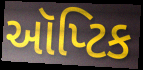
ઑપ્ટિક